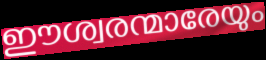
ഈശ്വരന്മാരേയും